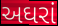
અઘરાં